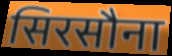
सिरसौना